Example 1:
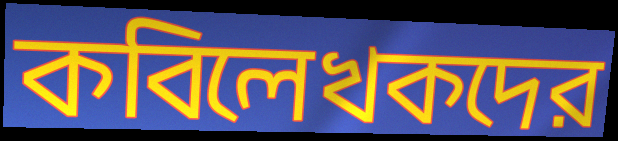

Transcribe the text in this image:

কবিলেখকদের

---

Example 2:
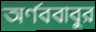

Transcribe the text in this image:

অর্ণববাবুর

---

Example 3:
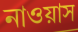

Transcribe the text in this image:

নাওয়াস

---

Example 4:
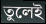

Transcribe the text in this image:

তুলেই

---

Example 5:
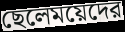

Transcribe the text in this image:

ছেলেময়েদের